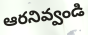
ఆరనివ్వండి